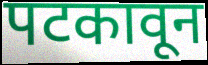
पटकावून